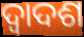
ଦ୍ବାଦଶ